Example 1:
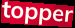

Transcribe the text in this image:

topper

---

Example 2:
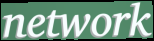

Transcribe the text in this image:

network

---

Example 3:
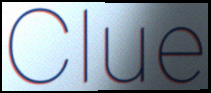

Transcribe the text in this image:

Clue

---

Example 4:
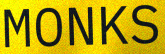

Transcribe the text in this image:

MONKS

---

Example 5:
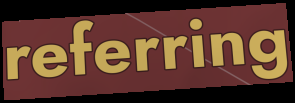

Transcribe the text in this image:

referring